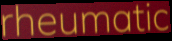
rheumatic